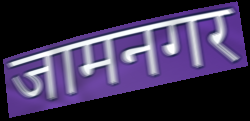
जामनगर